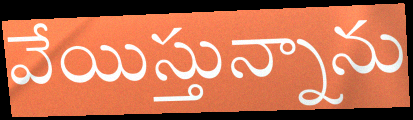
వేయిస్తున్నాను